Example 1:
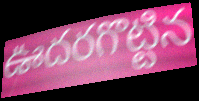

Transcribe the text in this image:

ఊదరగొట్టిన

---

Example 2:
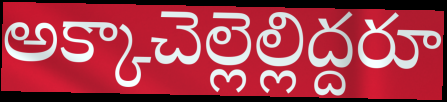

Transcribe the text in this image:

అక్కాచెల్లెల్లిద్దరూ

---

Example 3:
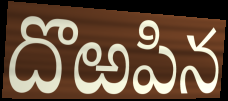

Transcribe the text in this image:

దొఱపిన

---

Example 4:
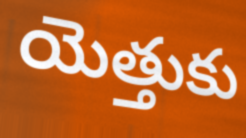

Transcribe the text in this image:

యెత్తుకు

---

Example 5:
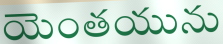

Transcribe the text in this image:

యెంతయును